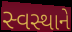
સ્વસ્થાને